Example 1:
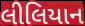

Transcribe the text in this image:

લીલિયાન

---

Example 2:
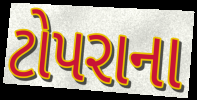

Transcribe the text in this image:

ટોપરાના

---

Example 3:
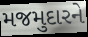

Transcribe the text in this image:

મજમુદારને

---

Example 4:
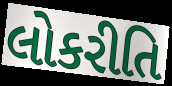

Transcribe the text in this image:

લોકરીતિ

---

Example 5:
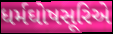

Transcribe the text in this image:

ધર્મઘોષસૂરિએ